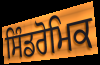
ਸਿੰਡਰੋਮਿਕ